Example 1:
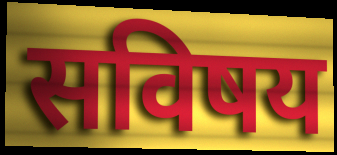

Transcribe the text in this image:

सविषय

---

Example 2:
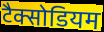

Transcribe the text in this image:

टैक्सोडियम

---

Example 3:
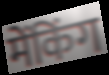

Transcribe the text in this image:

मेंकिंग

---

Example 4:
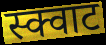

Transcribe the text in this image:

स्क्वाट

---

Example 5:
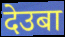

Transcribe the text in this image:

देउबा